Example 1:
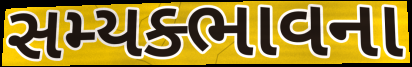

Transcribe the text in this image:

સમ્યક્ભાવના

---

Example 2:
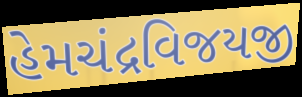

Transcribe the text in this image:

હેમચંદ્રવિજયજી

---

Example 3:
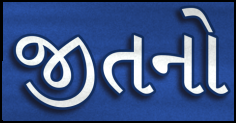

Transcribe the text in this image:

જીતનો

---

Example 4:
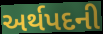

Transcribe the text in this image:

અર્થપદની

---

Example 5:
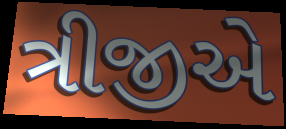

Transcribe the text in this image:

ત્રીજીએ